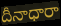
దీనాధారా